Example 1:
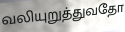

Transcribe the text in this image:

வலியுறுத்துவதோ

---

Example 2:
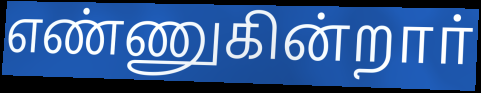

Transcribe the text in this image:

எண்ணுகின்றார்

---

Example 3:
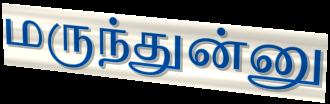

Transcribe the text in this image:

மருந்துன்னு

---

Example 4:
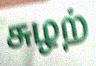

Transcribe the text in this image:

சுழற்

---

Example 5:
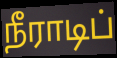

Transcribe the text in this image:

நீராடிப்